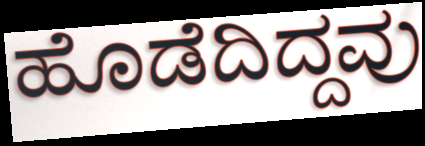
ಹೊಡೆದಿದ್ದವು